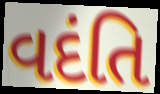
વદંતિ